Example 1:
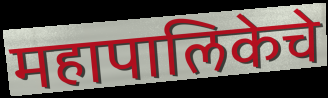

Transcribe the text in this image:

महापालिकेचे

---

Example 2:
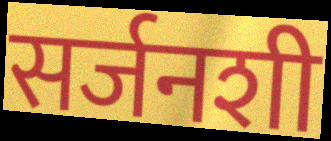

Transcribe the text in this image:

सर्जनशी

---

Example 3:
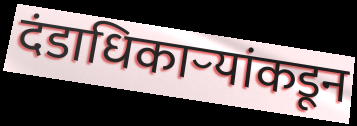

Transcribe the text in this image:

दंडाधिकाऱ्यांकडून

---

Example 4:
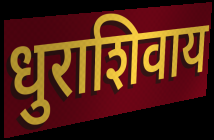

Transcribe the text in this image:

धुराशिवाय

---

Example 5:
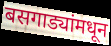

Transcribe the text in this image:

बसगाड्यांमधून